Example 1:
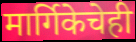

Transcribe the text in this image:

मार्गिकेचेही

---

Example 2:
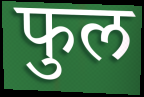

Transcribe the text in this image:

फुल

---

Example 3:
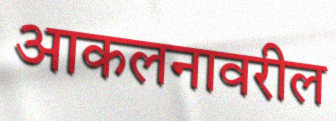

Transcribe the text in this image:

आकलनावरील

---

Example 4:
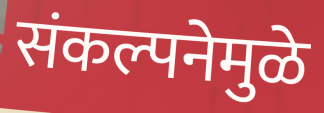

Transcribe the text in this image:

संकल्पनेमुळे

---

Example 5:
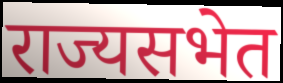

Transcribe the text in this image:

राज्यसभेत